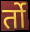
र्तो